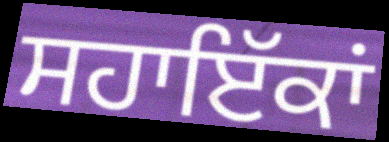
ਸਹਾਇੱਕਾਂ